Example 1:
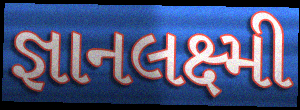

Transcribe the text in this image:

જ્ઞાનલક્ષ્મી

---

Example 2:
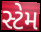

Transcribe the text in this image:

સ્ટેમ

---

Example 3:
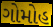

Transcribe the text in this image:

ગોમોહ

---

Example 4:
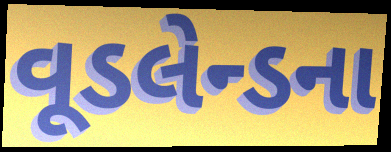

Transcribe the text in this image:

વૂડલેન્ડના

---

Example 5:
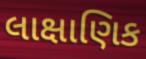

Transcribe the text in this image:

લાક્ષાણિક